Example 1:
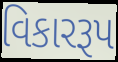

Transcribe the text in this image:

વિકારરૂપ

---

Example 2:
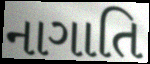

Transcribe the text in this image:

નાગાતિ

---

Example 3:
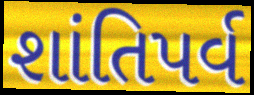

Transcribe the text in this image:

શાંતિપર્વ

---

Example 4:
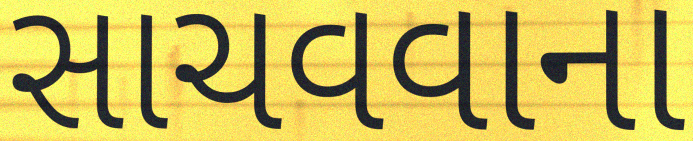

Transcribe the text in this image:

સાચવવાના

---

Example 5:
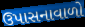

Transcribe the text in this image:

ઉપાસનાવાળો